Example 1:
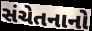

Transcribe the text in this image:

સંચેતનાનો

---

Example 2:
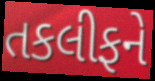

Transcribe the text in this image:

તકલીફને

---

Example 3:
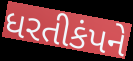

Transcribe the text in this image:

ધરતીકંપને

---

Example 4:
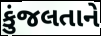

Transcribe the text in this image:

કુંજલતાને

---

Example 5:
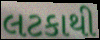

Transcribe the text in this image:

લટકાથી